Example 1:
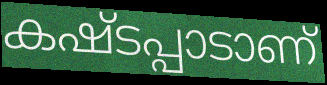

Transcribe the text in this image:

കഷ്ടപ്പാടാണ്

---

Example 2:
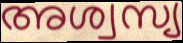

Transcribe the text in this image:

അശ്വസ്യ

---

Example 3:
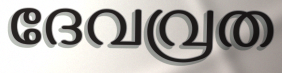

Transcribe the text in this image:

ദേവവ്രത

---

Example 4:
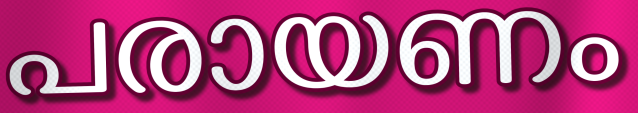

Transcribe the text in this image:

പരായണം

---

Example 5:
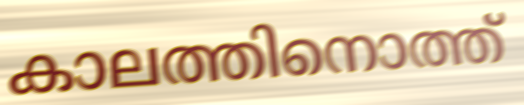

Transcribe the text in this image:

കാലത്തിനൊത്ത്